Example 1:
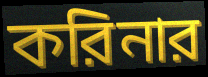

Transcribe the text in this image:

করিনার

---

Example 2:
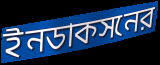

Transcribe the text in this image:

ইনডাকসনের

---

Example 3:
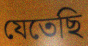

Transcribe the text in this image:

যেতেছি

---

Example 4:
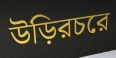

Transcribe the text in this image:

উড়িরচরে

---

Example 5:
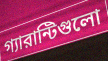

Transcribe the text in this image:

গ্যারান্টিগুলো